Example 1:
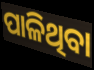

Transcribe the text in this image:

ପାଳିଥିବା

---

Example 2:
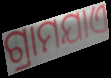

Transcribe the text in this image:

ଗ୍ରାମଯାଏ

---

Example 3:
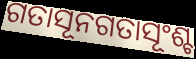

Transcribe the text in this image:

ଗତାସୂନଗତାସୂଂଶ୍ଚ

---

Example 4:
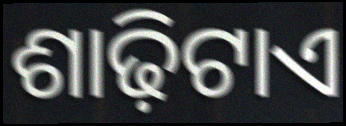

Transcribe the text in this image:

ଶାଢ଼ିଟାଏ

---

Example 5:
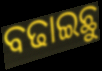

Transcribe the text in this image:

ବଢାଇଛୁ